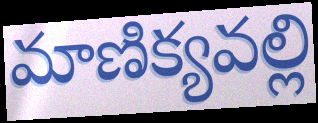
మాణిక్యవల్లి